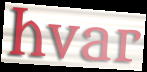
hvar